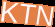
KTN